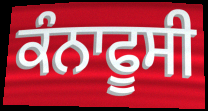
ਕੰਨਾਫੂਸੀ